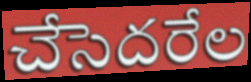
చేసెదరేల